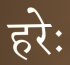
हरेः